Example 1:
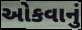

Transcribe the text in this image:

ઓકવાનું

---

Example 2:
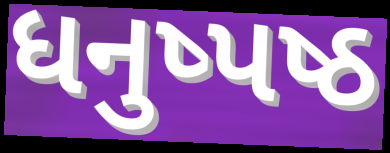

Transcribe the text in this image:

ધનુષ્પષ્ઠ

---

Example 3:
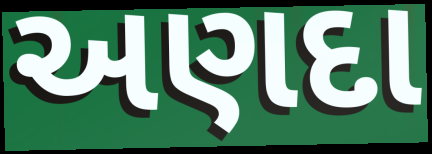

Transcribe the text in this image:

અણદા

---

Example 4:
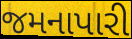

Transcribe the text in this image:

જમનાપારી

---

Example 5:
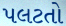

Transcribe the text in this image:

પલટતો